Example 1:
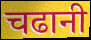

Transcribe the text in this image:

चढानी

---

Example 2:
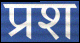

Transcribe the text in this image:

प्रश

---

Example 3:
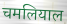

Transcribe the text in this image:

चमलियाल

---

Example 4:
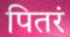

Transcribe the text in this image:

पितरं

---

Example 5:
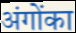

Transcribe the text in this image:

अंगोंका